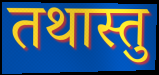
तथास्तु